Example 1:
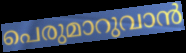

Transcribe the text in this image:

പെരുമാറുവാൻ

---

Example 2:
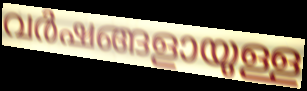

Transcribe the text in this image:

വർഷങ്ങളായുള്ള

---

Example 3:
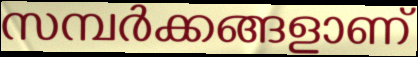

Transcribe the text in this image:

സമ്പർക്കങ്ങളാണ്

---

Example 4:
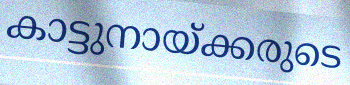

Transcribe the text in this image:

കാട്ടുനായ്ക്കരുടെ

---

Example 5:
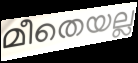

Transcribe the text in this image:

മീതെയല്ല